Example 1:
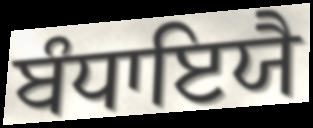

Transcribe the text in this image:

ਬੰਧਾਇਯੈ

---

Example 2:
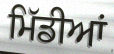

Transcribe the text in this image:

ਮਿੱਡੀਆਂ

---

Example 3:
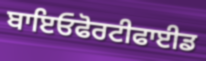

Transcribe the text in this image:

ਬਾਇਓਫੋਰਟੀਫਾਈਡ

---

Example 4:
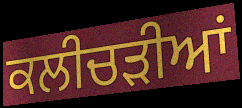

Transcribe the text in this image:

ਕਲੀਚੜੀਆਂ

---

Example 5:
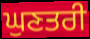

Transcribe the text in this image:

ਘੁਣਤਰੀ